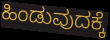
ಹಿಂಡುವುದಕ್ಕೆ